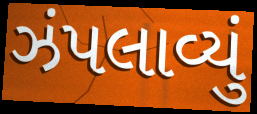
ઝંપલાવ્યું